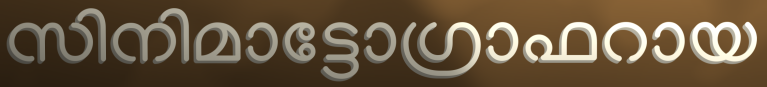
സിനിമാട്ടോഗ്രാഫറായ